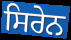
ਸਿਰੇਨ